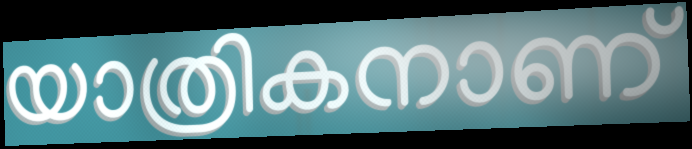
യാത്രികനാണ്